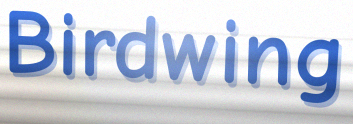
Birdwing